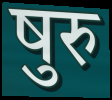
षुरु